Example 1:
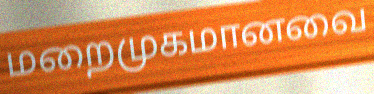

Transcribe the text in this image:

மறைமுகமானவை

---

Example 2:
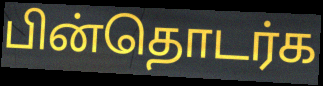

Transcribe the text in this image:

பின்தொடர்க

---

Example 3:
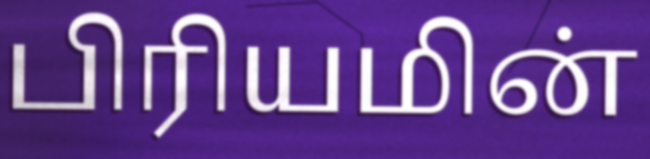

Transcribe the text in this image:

பிரியமின்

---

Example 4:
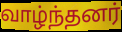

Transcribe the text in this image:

வாழ்ந்தனர்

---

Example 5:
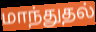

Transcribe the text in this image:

மாந்துதல்